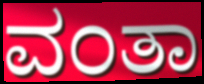
ವಂತಾ